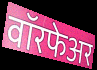
वॉरफेअर